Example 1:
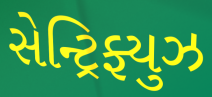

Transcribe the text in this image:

સેન્ટ્રિફ્યુઝ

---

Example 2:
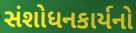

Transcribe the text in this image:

સંશોધનકાર્યનો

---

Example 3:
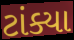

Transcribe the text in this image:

ટાંક્યા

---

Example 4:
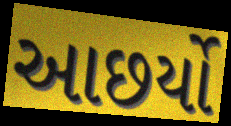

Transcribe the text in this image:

આછર્યો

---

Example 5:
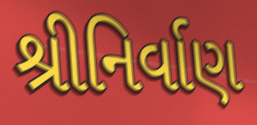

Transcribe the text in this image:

શ્રીનિર્વાણ